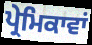
ਪ੍ਰੇਮਿਕਾਵਾਂ